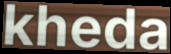
kheda